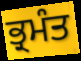
ਭ੍ਰਮੰਤ